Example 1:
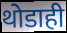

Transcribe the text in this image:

थोडाही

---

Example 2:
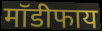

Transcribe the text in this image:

मॉडीफाय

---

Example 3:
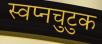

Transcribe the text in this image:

स्वप्नचुटुक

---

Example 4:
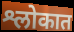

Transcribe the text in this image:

श्लोकात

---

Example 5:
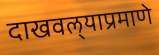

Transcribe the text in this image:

दाखवल्याप्रमाणे